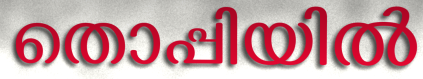
തൊപ്പിയിൽ